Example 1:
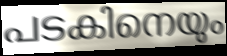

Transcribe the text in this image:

പടകിനെയും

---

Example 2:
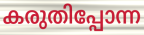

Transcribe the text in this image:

കരുതിപ്പോന്ന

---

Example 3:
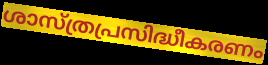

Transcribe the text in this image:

ശാസ്ത്രപ്രസിദ്ധീകരണം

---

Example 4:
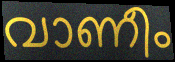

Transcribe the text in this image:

വാണീം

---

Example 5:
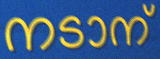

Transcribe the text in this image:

നടാന്